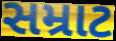
સમ્રાટ